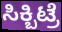
ಸಿಕ್ಬಿಟ್ರೆ